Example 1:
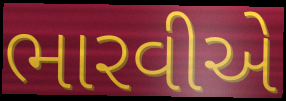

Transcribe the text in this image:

ભારવીએ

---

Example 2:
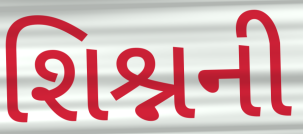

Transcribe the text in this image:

શિશ્નની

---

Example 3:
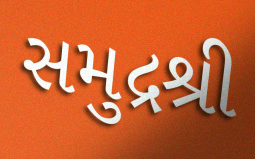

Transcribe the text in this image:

સમુદ્રશ્રી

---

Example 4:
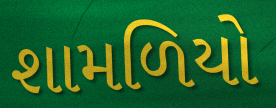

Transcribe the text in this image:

શામળિયો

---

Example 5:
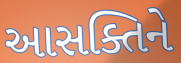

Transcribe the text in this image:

આસક્તિને